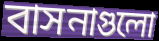
বাসনাগুলো